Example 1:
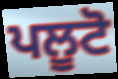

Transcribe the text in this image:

ਪਲੂਟੋ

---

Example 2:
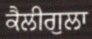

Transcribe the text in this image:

ਕੈਲੀਗੁਲਾ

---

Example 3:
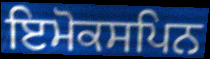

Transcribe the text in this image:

ਇਮੋਕਸਪਿਨ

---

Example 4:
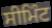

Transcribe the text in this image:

ਸੀਮਿੰਟ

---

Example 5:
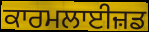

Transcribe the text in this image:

ਕਾਰਮਲਾਈਜ਼ਡ